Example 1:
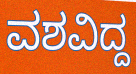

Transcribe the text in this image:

ವಶವಿದ್ದ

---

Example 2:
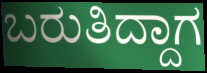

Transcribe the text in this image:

ಬರುತಿದ್ದಾಗ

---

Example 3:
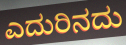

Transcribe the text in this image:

ಎದುರಿನದು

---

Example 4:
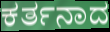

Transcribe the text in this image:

ಕರ್ತನಾದ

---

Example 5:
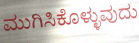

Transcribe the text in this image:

ಮುಗಿಸಿಕೊಳ್ಳುವುದು